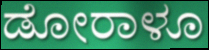
ಡೋರಾಳೂ